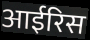
आईरिस